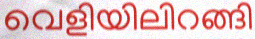
വെളിയിലിറങ്ങി